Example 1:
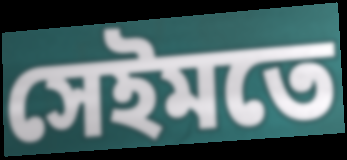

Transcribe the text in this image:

সেইমতে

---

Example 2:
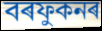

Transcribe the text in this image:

বৰফুকনৰ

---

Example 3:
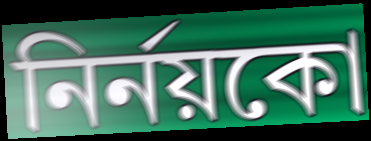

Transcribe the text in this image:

নিৰ্নয়কো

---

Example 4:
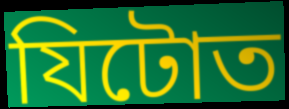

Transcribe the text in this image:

যিটোত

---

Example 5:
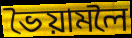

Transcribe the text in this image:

ভৈয়ামলৈ